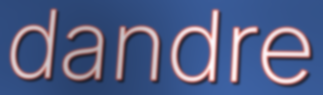
dandre